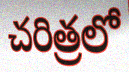
చరిత్రలో